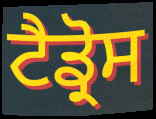
ਟੈਡ੍ਰੋਸ